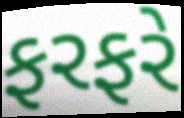
ફરફરે